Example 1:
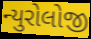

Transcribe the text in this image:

ન્યુરોલોજી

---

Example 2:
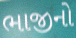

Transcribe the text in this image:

ભાજીનો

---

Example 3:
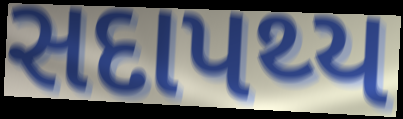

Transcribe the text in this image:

સદાપથ્ય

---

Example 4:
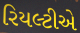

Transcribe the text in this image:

રિયલ્ટીએ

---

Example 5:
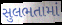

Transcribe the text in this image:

સુલભતામાં